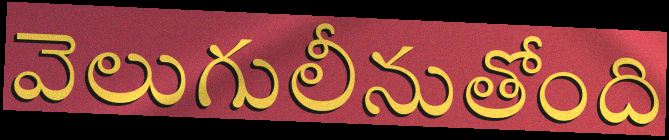
వెలుగులీనుతోంది